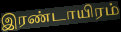
இரண்டாயிரம்